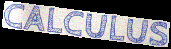
CALCULUS